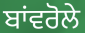
ਬਾਂਵਰੋਲੇ